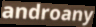
androany